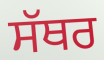
ਸੱਥਰ